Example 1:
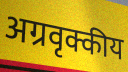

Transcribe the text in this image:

अग्रवृक्कीय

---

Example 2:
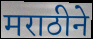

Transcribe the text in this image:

मराठीने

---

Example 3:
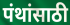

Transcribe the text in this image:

पंथांसाठी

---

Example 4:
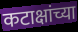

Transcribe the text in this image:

कटाक्षांच्या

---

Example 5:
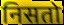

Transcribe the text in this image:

निसतो